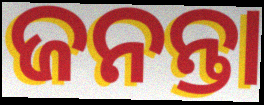
ଜନନ୍ତା